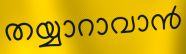
തയ്യാറാവാൻ